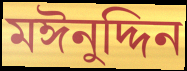
মঈনুদ্দিন